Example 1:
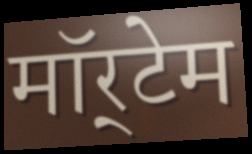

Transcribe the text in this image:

मॉर्टेम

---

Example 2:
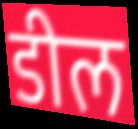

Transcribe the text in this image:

डील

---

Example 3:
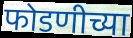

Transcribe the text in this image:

फोडणीच्या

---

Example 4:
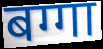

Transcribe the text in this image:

बग्गा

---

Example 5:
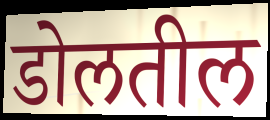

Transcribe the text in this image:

डोलतील